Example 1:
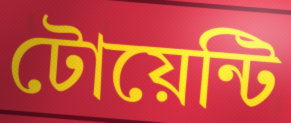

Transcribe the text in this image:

টোয়েন্টি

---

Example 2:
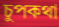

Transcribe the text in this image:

চুপকথা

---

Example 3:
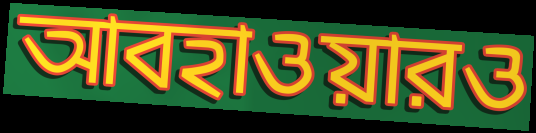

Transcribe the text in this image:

আবহাওয়ারও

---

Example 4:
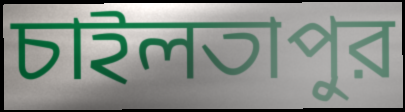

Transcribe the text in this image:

চাইলতাপুর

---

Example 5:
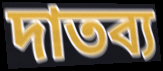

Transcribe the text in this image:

দাতব্য